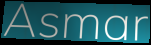
Asmar